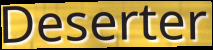
Deserter